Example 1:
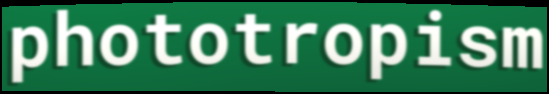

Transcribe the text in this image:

phototropism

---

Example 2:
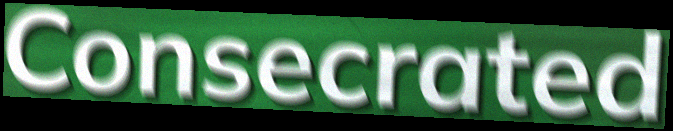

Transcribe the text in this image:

Consecrated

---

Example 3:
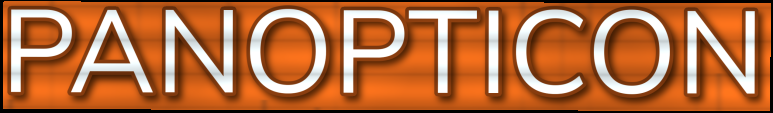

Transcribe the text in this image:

PANOPTICON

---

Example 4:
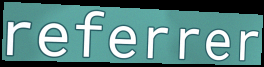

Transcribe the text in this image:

referrer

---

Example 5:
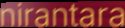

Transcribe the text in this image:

nirantara